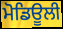
ਮੋਡਿਊਲੀ